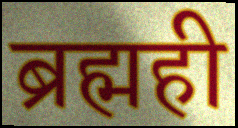
ब्रह्मही